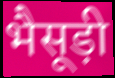
भैसूड़ी